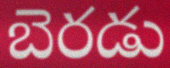
బెరడు